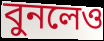
বুনলেও